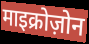
माइक्रोज़ोन